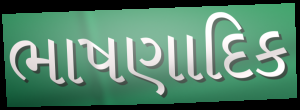
ભાષણાદિક